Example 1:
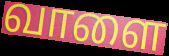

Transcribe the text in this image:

வாளை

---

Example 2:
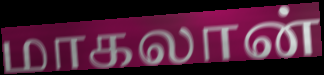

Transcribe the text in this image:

மாகலான்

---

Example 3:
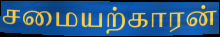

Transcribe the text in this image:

சமையற்காரன்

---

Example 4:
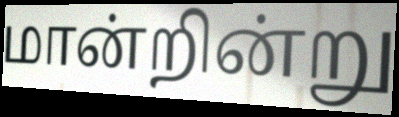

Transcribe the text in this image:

மான்றின்று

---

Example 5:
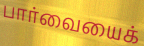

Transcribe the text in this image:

பார்வையைக்